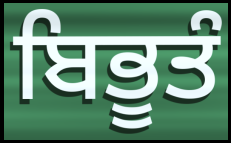
ਬਿਭੂਤੰ